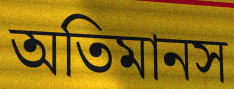
অতিমানস